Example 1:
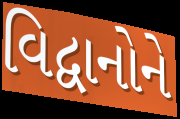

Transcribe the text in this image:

વિદ્વાનોને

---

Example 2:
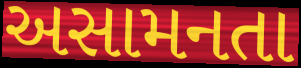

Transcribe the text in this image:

અસામનતા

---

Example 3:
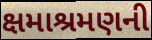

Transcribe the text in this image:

ક્ષમાશ્રમણની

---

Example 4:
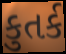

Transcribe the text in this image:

કુતર્ક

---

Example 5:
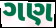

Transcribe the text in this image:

ગણ